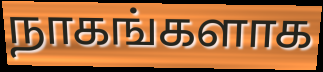
நாகங்களாக